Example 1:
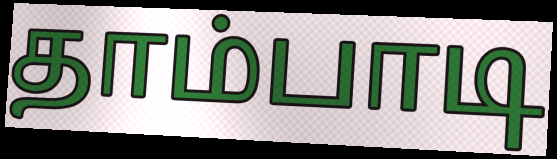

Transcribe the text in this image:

தாம்பாடி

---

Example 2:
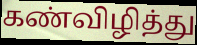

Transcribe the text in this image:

கண்விழித்து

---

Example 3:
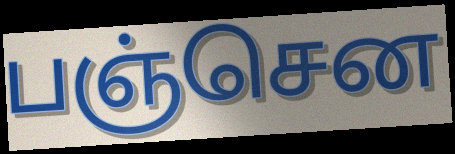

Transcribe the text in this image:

பஞ்சென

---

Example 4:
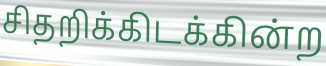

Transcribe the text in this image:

சிதறிக்கிடக்கின்ற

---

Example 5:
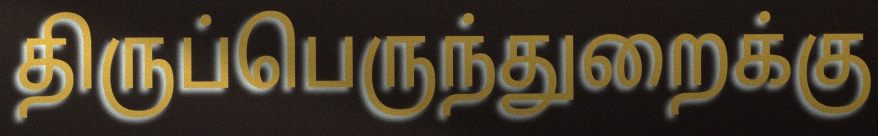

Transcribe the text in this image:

திருப்பெருந்துறைக்கு